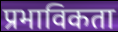
प्रभाविकता